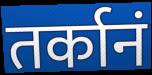
तर्कानं